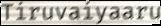
Tiruvaiyaaru